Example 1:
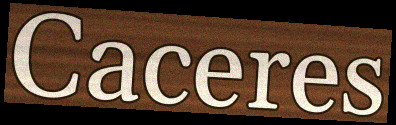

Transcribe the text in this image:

Caceres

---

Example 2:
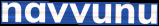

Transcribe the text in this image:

navvunu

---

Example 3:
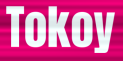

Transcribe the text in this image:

Tokoy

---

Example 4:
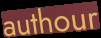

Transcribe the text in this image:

authour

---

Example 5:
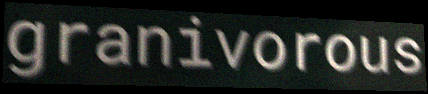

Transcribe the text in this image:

granivorous